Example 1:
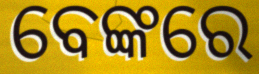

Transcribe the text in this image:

ବେଙ୍କରେ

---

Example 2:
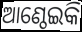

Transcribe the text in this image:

ଆଣ୍ଠେଇକି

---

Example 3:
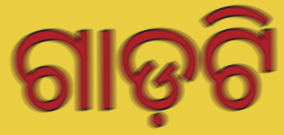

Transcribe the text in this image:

ଗାଡ଼ଟି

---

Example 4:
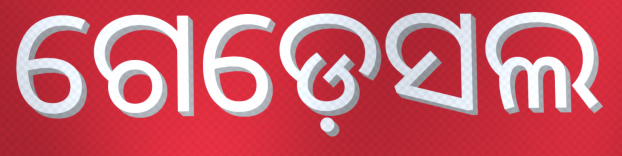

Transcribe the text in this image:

ଗେଡ଼େସଲ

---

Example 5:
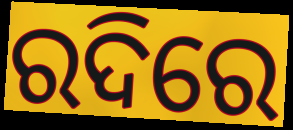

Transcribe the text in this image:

ରଦିରେ